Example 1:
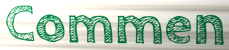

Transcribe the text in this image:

Commen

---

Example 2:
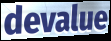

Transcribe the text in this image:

devalue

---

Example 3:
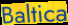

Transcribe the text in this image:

Baltica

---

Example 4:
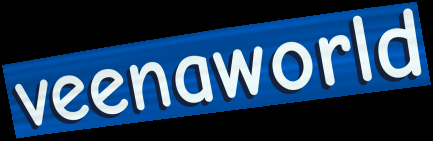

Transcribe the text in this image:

veenaworld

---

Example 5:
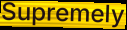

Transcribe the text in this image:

Supremely